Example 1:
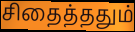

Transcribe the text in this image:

சிதைத்ததும்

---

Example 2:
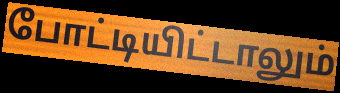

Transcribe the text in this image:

போட்டியிட்டாலும்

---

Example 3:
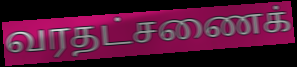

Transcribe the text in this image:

வரதட்சணைக்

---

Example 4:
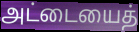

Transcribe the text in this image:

அட்டையைத்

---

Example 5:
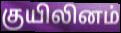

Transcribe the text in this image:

குயிலினம்